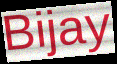
Bijay